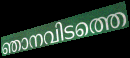
ഞാനവിടത്തെ